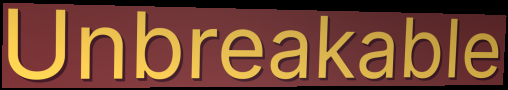
Unbreakable